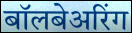
बॉलबेअरिंग